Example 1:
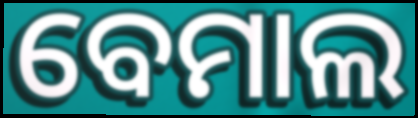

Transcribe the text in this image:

ବେମାଲ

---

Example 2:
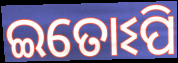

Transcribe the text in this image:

ଇତୋଽପି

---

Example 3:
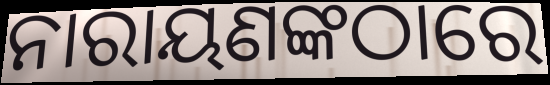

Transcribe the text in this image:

ନାରାୟଣଙ୍କଠାରେ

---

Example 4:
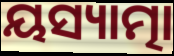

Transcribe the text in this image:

ୟସ୍ୟାତ୍ମା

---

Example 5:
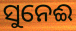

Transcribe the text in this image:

ସୁନେଈ